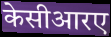
केसीआरए